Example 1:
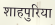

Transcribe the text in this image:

शाहपुरिया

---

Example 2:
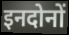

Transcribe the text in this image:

इनदोनों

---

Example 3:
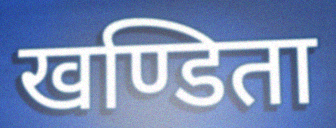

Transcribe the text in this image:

खण्डिता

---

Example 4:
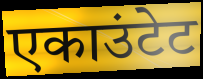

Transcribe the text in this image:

एकाउंटेट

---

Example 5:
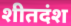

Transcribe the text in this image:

शीतदंश